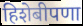
हिशेबीपणा